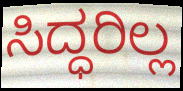
ಸಿದ್ಧರಿಲ್ಲ